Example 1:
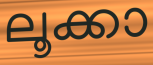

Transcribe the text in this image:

ലൂക്കാ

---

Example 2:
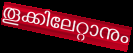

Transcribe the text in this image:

തൂക്കിലേറ്റാനും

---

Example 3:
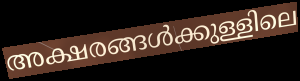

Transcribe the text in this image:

അക്ഷരങ്ങൾക്കുള്ളിലെ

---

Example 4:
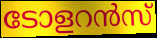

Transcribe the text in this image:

ടോളറൻസ്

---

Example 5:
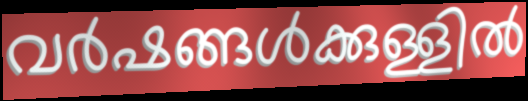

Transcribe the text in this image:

വർഷങ്ങൾക്കുള്ളിൽ